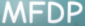
MFDP